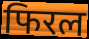
फिरल